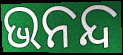
ଭନନ୍ଦ